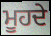
ਮੂਹਦੇ